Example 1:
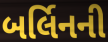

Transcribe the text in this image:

બર્લિનની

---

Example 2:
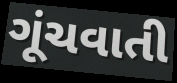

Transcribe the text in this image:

ગૂંચવાતી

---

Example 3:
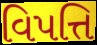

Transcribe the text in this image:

વિપત્તિ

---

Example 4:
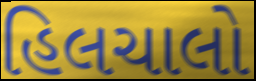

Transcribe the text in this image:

હિલચાલો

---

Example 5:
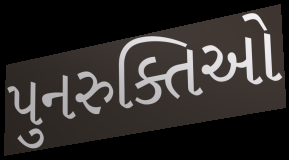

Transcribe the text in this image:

પુનરુક્તિઓ